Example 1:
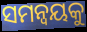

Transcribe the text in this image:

ସମନ୍ବୟକୁ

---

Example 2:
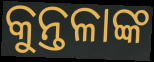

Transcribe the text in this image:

କୁନ୍ତଳାଙ୍କ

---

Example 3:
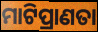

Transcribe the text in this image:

ମାଟିପ୍ରାଣତା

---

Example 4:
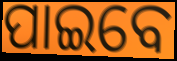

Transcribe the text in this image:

ପାଇବେ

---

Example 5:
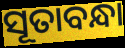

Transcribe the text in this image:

ସୂତାବନ୍ଧା